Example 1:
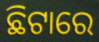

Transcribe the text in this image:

ଛିଟାରେ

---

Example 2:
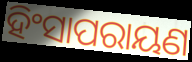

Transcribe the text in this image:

ହିଂସାପରାୟଣ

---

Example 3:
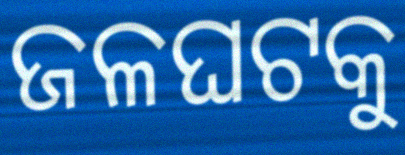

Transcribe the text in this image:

ଜଳଘଟକୁ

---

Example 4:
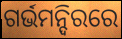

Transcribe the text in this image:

ଗର୍ଭମନ୍ଦିରରେ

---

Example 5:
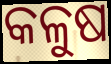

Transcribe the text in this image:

କଳୁଷ